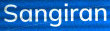
Sangiran